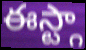
ఈస్ట్గా